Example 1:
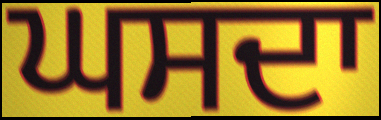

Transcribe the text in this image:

ਘਸਦਾ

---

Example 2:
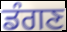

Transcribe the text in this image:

ਡੰਗਣ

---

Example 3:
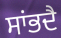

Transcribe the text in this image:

ਸਾਂਭਦੈ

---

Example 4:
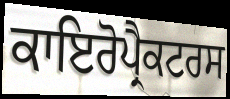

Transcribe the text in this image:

ਕਾਇਰੋਪ੍ਰੈਕਟਰਸ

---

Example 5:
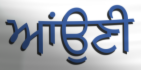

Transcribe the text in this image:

ਆਂਉਣੀ